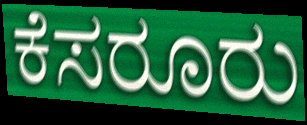
ಕೆಸರೂರು